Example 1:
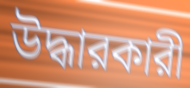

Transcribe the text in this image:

উদ্ধারকারী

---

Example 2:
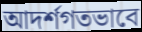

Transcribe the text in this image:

আদর্শগতভাবে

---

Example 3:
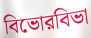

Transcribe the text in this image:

বিভোরবিভা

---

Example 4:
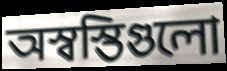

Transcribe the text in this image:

অস্বস্তিগুলো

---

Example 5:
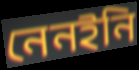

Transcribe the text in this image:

নেনইনি